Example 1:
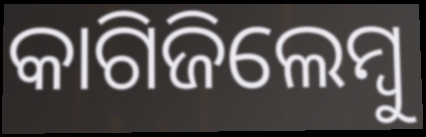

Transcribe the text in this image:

କାଗିଜିଲେମ୍ବୁ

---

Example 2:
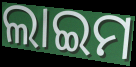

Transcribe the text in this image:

ଲାଇମ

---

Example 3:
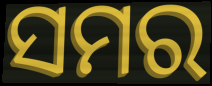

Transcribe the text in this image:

ସମର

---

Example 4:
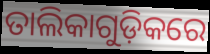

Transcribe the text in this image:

ତାଲିକାଗୁଡ଼ିକରେ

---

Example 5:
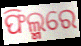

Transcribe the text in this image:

ଫିଲ୍ମରେ